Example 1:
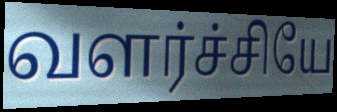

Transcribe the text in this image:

வளர்ச்சியே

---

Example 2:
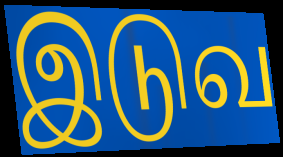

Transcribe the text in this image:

இடுவ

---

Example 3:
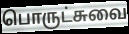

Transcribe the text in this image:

பொருட்சுவை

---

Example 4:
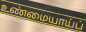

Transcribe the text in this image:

உண்மையாய்ப்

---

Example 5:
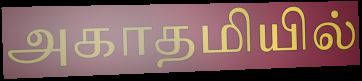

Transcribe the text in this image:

அகாதமியில்